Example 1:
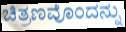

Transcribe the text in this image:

ಚಿತ್ರಣವೊಂದನ್ನು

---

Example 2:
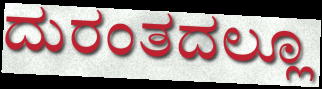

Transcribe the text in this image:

ದುರಂತದಲ್ಲೂ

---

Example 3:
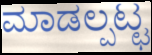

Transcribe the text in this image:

ಮಾಡಲ್ಪಟ್ಟ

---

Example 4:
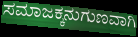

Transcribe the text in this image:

ಸಮಾಜಕ್ಕನುಗುಣವಾಗಿ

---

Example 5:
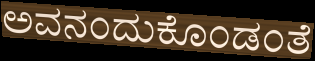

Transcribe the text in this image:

ಅವನಂದುಕೊಂಡಂತೆ